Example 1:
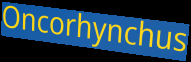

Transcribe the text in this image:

Oncorhynchus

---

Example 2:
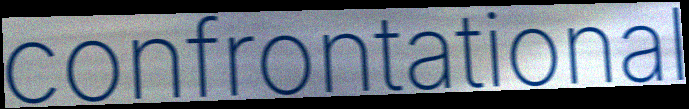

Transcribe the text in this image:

confrontational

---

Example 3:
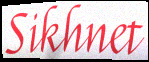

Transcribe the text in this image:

Sikhnet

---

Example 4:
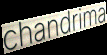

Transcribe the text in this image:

chandrima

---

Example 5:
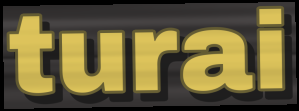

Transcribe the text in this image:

turai